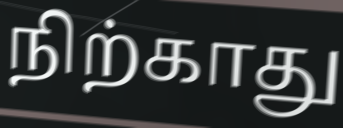
நிற்காது